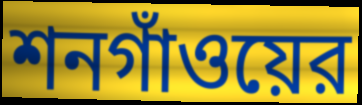
শনগাঁওয়ের